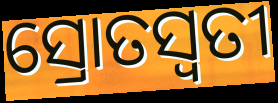
ସ୍ରୋତସ୍ଵତୀ